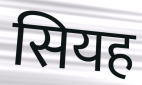
सियह